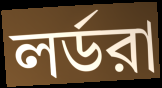
লর্ডরা